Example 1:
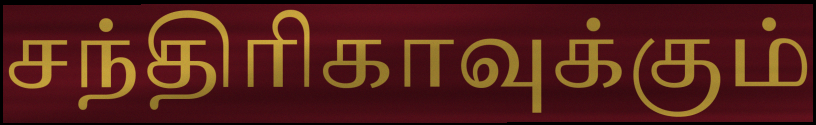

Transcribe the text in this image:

சந்திரிகாவுக்கும்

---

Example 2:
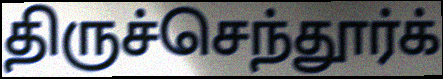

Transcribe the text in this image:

திருச்செந்தூர்க்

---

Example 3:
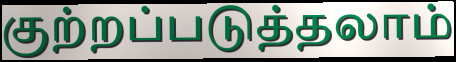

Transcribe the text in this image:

குற்றப்படுத்தலாம்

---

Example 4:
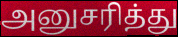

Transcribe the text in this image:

அனுசரித்து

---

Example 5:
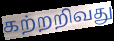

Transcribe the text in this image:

கற்றறிவது